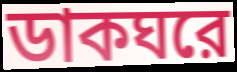
ডাকঘরে